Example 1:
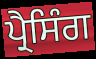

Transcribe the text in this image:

ਪ੍ਰੈਸਿੰਗ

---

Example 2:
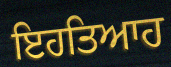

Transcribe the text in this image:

ਇਹਤਿਆਹ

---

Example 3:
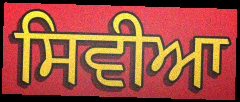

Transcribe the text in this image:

ਸਿਵੀਆ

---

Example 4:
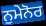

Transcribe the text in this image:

ਨੁਮੇਨੋਰ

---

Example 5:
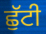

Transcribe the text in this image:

ਛੁੱਟੀ